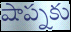
షాప్నకు